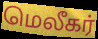
மெலீகர்